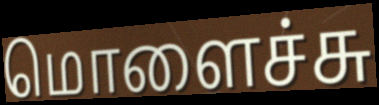
மொளைச்சு